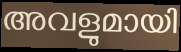
അവളുമായി